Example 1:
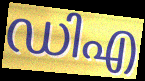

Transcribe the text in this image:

ഡിഎ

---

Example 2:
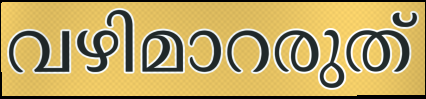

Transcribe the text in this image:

വഴിമാറരുത്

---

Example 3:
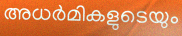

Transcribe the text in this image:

അധർമികളുടെയും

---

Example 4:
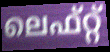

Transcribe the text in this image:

ലെഫ്റ്റ്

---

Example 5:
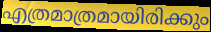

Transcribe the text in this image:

എത്രമാത്രമായിരിക്കും